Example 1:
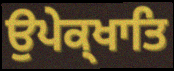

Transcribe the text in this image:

ਉਪੇਕ੍ਖਾਤਿ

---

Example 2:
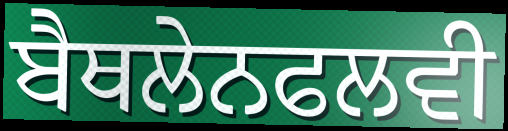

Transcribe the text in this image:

ਬੈਥਲੇਨਫਲਵੀ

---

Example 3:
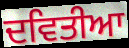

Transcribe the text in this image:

ਦਵਿਤੀਆ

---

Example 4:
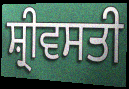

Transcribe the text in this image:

ਸ਼੍ਰੀਵਸਤੀ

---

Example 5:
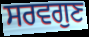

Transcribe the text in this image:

ਸਰਵਗੁਣ